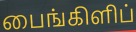
பைங்கிளிப்